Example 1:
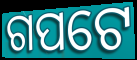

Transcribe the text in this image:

ଗପଟେ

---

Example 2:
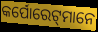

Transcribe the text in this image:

କର୍ପୋରେଟ୍‌ମାନେ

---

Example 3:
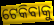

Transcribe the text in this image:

ଟେକିବାକୁ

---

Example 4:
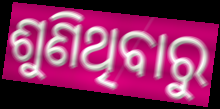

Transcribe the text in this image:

ଶୁଣିଥିବାରୁ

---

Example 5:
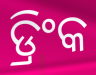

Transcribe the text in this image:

ଡ୍ରିଂକ